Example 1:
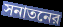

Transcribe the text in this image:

সনাতনের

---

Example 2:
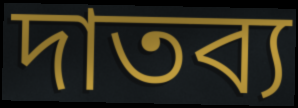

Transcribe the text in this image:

দাতব্য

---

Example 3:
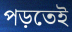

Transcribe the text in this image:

পড়তেই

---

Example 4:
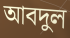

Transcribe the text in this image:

আবদুল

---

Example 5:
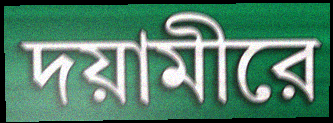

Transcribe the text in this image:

দয়ামীরে